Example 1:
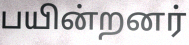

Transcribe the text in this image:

பயின்றனர்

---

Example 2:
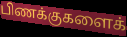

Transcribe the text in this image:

பிணக்குகளைக்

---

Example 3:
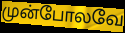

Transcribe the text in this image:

முன்போலவே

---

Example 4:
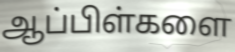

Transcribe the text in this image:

ஆப்பிள்களை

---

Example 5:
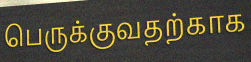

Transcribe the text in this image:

பெருக்குவதற்காக